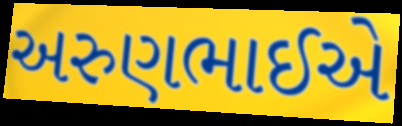
અરુણભાઈએ